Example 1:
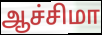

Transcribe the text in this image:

ஆச்சிமா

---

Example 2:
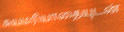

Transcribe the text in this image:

சுயமரியாதையுடன்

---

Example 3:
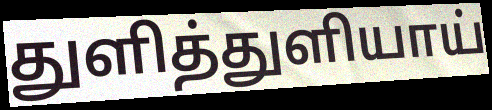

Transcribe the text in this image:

துளித்துளியாய்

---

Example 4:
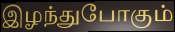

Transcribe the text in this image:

இழந்துபோகும்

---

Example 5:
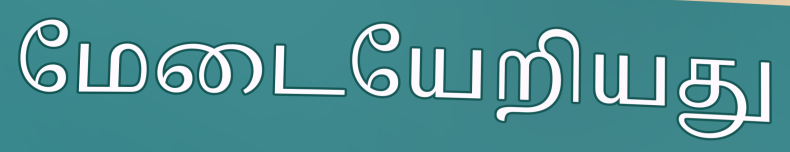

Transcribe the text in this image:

மேடையேறியது